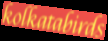
kolkatabirds